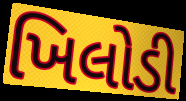
ખિલોડી